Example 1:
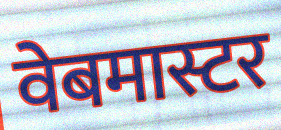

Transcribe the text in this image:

वेबमास्टर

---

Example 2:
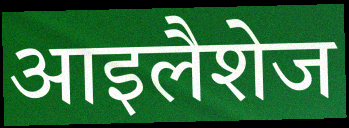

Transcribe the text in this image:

आइलैशेज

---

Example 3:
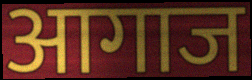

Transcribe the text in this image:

आगाज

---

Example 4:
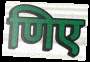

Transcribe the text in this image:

णिए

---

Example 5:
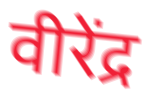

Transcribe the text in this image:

वीरेंद्र